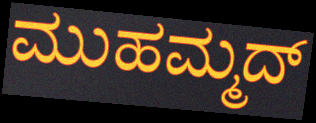
ಮುಹಮ್ಮದ್